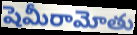
షెమీరామోతు